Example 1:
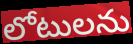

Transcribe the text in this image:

లోటులను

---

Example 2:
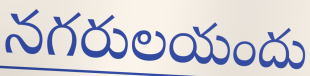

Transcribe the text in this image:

నగరులయందు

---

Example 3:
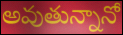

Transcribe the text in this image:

అవుతున్నానో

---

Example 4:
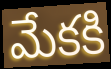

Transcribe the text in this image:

మేకకి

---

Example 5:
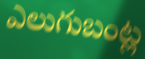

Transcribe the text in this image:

ఎలుగుబంట్ల